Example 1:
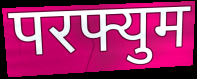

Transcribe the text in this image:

परफ्युम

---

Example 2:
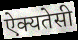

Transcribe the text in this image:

ऐक्यतेसी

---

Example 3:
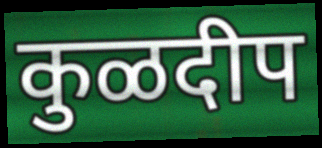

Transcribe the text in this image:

कुळदीप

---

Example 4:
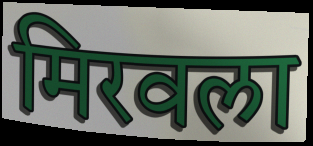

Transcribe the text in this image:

मिरवला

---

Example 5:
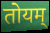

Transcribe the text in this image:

तोयम्